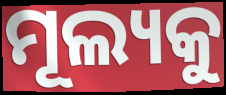
ମୂଲ୍ୟକୁ